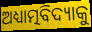
ଅଧ୍ୟାତ୍ମବିଦ୍ୟାକୁ